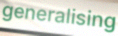
generalising